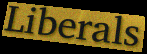
Liberals